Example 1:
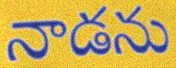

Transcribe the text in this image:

నాడను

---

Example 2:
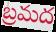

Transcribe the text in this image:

బ్రమద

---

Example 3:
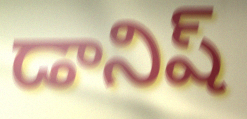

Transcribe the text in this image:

డానిష్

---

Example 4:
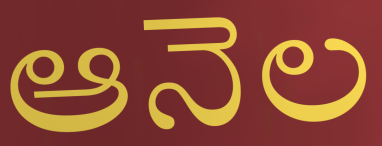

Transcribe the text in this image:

ఆనెల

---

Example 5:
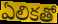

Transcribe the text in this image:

ఏలికతో